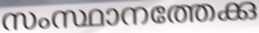
സംസ്ഥാനത്തേക്കു